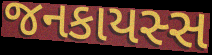
જનકાયસ્સ